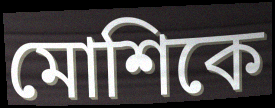
মোশিকে